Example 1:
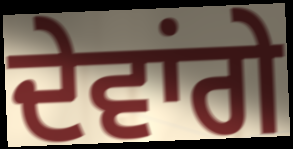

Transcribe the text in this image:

ਦੇਵਾਂਗੇ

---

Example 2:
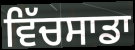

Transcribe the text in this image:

ਵਿੱਚਸਾਡਾ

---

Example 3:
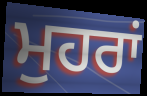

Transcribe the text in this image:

ਮੁਹਰਾਂ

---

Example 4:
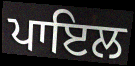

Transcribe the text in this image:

ਪਾਇਲ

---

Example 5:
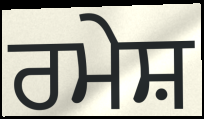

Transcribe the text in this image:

ਰਮੇਸ਼